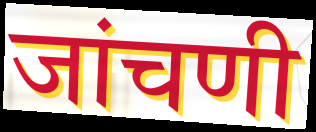
जांचणी